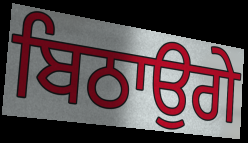
ਬਿਠਾਉਗੇ